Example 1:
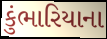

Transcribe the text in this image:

કુંભારિયાના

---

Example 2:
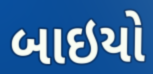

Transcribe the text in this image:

બાઇયો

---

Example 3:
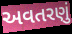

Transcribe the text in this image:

અવતરણું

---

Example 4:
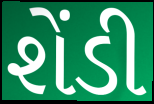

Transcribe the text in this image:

શેંડી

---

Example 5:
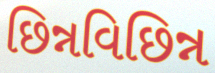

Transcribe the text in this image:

છિન્નવિછિન્ન